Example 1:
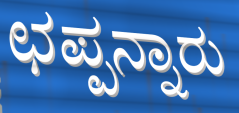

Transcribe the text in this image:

ಛಪ್ಪನ್ನಾರು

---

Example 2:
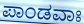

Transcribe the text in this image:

ಪಾಂಡವಾಃ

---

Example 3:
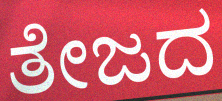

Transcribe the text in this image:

ತೇಜದ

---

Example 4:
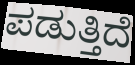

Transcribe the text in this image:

ಪಡುತ್ತಿದೆ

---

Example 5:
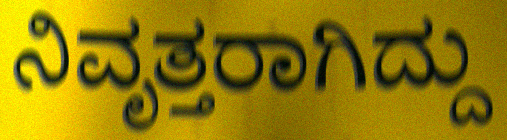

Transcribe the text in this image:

ನಿವೃತ್ತರಾಗಿದ್ದು